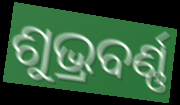
ଶୁଭ୍ରବର୍ଣ୍ଣ